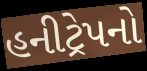
હનીટ્રેપનો